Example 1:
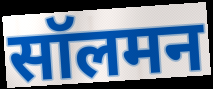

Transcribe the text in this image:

सॉलमन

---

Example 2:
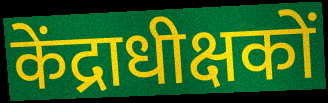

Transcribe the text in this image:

केंद्राधीक्षकों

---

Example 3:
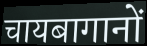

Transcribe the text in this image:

चायबागानों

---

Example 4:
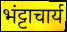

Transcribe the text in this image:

भंट्टाचार्य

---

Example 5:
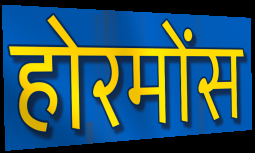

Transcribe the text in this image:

होरमोंस